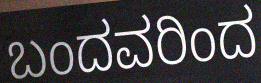
ಬಂದವರಿಂದ